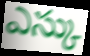
ఎస్కు